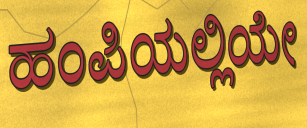
ಹಂಪಿಯಲ್ಲಿಯೇ